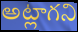
అట్లాగని